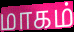
மாகம்